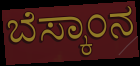
ಬೆಸ್ಕಾಂನ